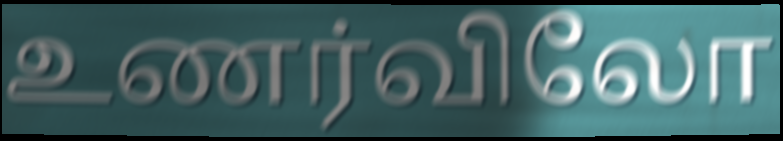
உணர்விலோ